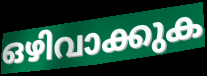
ഒഴിവാക്കുക